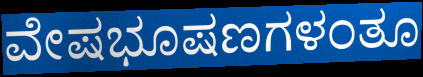
ವೇಷಭೂಷಣಗಳಂತೂ